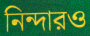
নিন্দারও